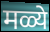
मळ्ये